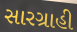
સારગ્રાહી